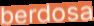
berdosa